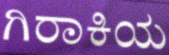
ಗಿರಾಕಿಯ